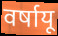
वर्षायू